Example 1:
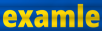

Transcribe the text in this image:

examle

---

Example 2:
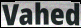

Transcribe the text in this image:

Vahed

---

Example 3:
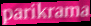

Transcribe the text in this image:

parikrama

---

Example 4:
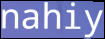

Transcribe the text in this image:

nahiy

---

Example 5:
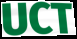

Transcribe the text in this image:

UCT